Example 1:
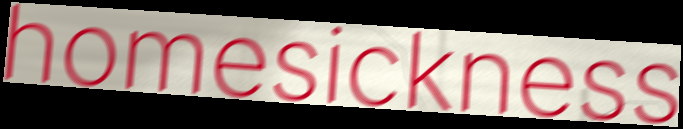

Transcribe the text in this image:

homesickness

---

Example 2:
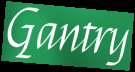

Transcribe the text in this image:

Gantry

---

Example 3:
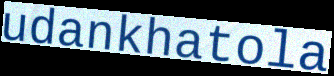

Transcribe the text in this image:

udankhatola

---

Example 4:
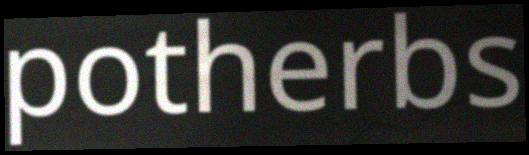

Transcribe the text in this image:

potherbs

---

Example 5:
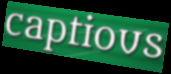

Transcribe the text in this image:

captious